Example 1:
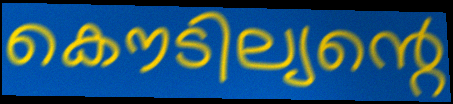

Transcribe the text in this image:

കൌടില്യന്റെ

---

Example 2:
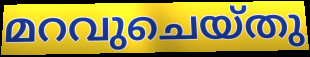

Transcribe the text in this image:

മറവുചെയ്തു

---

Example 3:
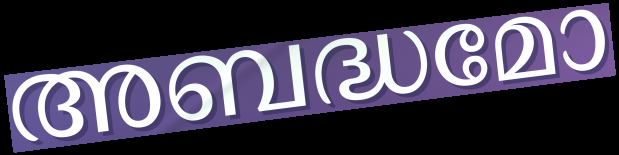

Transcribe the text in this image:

അബദ്ധമോ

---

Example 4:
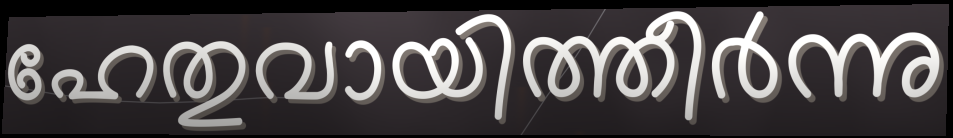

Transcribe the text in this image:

ഹേതുവായിത്തീർന്നു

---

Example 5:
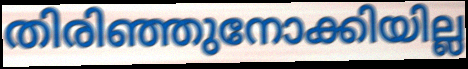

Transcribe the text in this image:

തിരിഞ്ഞുനോക്കിയില്ല